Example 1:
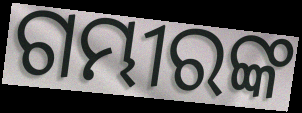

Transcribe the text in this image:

ଗମ୍ଭୀରଙ୍କ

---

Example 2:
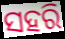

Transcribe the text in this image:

ସହରି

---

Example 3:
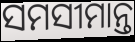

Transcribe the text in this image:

ସମସୀମାନ୍ତ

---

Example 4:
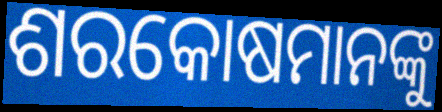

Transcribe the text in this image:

ଶରକୋଷମାନଙ୍କୁ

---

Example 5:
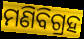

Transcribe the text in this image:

ମଣିବିଗ୍ରହ